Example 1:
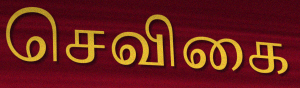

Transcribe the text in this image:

செவிகை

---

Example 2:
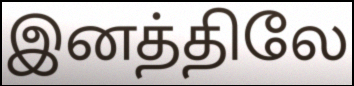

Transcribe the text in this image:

இனத்திலே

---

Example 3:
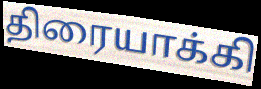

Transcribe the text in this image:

திரையாக்கி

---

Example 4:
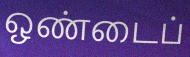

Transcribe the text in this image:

ஒண்டைப்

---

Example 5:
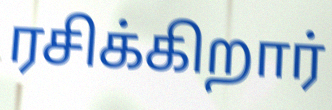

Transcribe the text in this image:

ரசிக்கிறார்